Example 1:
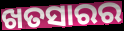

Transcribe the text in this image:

ଖତସାରର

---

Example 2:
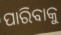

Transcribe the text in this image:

ପାରିବାକୁ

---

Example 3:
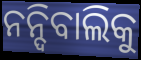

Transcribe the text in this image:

ନନ୍ଦିବାଲିକୁ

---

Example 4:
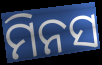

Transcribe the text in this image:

ମିନସ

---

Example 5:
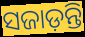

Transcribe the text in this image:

ସଜାଡ଼ନ୍ତି